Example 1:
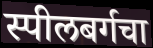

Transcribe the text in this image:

स्पीलबर्गचा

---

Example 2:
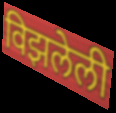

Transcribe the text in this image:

विझलेली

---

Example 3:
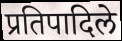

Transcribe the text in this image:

प्रतिपादिले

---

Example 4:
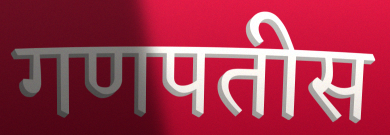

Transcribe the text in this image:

गणपतीस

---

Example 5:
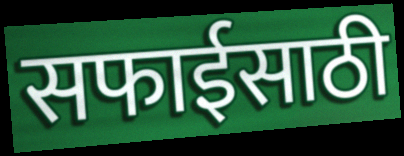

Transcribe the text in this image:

सफाईसाठी